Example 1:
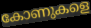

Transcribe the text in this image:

കോണുകളെ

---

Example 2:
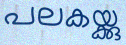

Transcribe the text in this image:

പലകയ്ക്കു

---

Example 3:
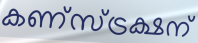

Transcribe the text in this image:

കണ്സ്ട്രക്ഷന്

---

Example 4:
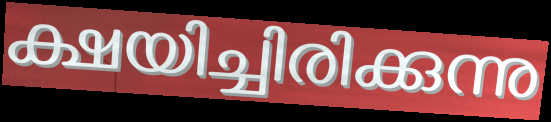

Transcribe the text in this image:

ക്ഷയിച്ചിരിക്കുന്നു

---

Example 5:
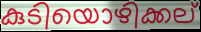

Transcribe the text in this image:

കുടിയൊഴിക്കല്